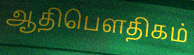
ஆதிபௌதிகம்